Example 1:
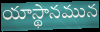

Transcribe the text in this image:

యాస్థానమున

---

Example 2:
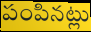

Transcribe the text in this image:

పంపినట్లు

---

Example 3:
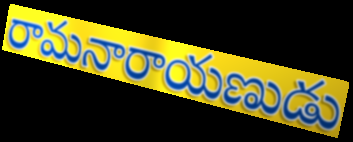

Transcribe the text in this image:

రామనారాయణుడు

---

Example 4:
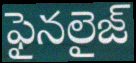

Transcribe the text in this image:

ఫైనలైజ్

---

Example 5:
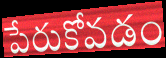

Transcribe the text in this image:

పేరుకోవడం